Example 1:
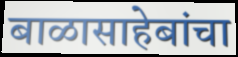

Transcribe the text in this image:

बाळासाहेबांचा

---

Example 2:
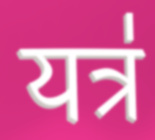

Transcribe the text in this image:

यत्र॑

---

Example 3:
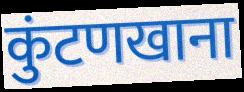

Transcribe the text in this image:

कुंटणखाना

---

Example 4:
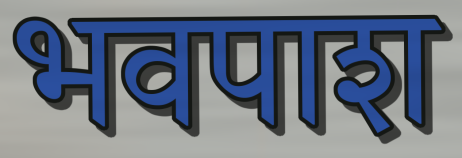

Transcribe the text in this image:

भवपाश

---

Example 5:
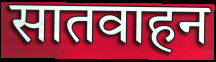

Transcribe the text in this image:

सातवाहन